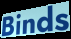
Binds